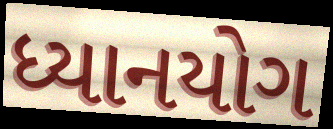
ધ્યાનયોગ